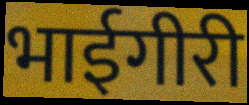
भाईगीरी